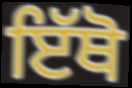
ਇੱਥੋ